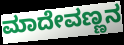
ಮಾದೇವಣ್ಣನ